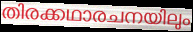
തിരക്കഥാരചനയിലും